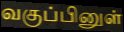
வகுப்பினுள்